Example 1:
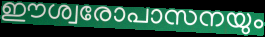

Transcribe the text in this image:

ഈശ്വരോപാസനയും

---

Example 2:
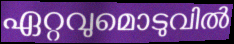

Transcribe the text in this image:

ഏറ്റവുമൊടുവിൽ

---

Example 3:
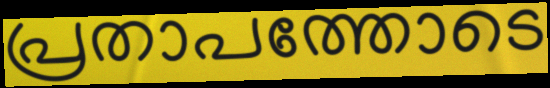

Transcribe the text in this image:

പ്രതാപത്തോടെ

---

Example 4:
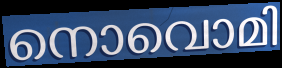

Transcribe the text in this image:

നൊവൊമി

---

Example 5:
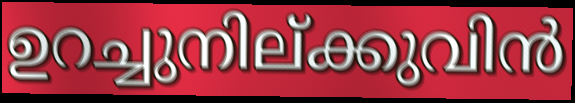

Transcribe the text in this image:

ഉറച്ചുനില്ക്കുവിൻ